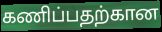
கணிப்பதற்கான